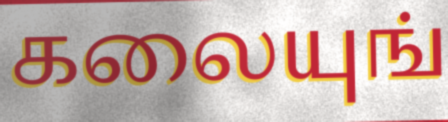
கலையுங்